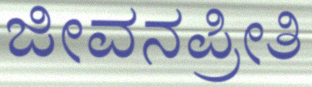
ಜೀವನಪ್ರೀತಿ